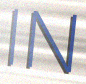
IN